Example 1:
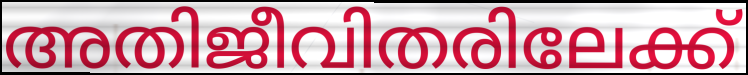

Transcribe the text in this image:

അതിജീവിതരിലേക്ക്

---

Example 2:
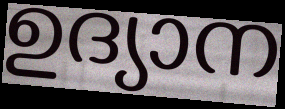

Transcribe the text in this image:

ഉദ്യാന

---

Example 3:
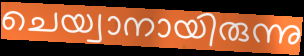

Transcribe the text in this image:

ചെയ്വാനായിരുന്നു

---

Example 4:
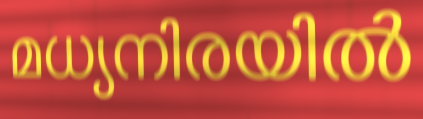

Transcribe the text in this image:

മധ്യനിരയിൽ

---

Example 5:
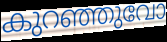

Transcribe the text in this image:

കുറഞ്ഞുവോ